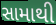
સામાથી